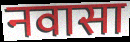
नवासा